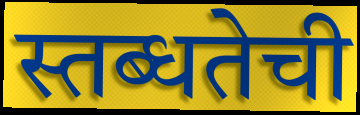
स्तब्धतेची